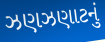
ઝણઝણાટનું